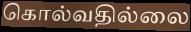
கொல்வதில்லை